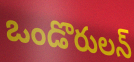
ఒండొరులన్